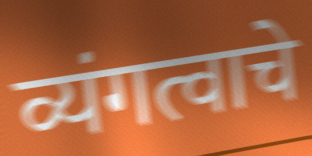
व्यंगत्वाचे